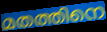
മതത്തിനെ